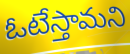
ఓటేస్తామని